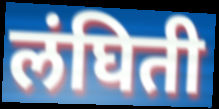
लंघिती